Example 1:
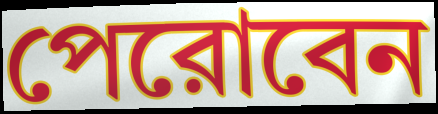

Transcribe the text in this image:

পেরোবেন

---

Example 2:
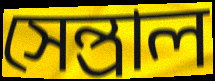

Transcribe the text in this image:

সেন্ত্রাল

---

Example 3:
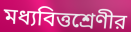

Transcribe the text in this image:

মধ্যবিত্তশ্রেণীর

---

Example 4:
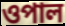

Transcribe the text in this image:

ওপাল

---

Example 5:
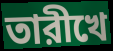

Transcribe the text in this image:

তারীখে